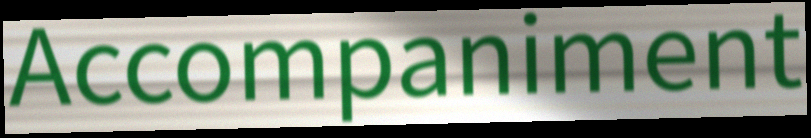
Accompaniment